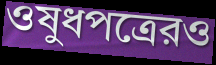
ওষুধপত্রেরও